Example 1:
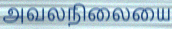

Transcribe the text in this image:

அவலநிலையை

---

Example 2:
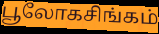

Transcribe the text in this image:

பூலோகசிங்கம்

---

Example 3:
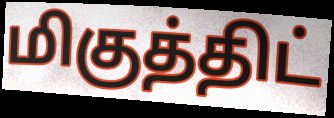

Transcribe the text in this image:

மிகுத்திட்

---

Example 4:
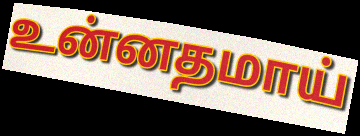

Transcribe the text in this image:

உன்னதமாய்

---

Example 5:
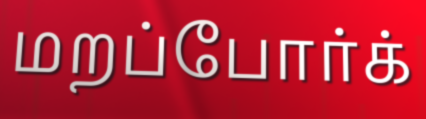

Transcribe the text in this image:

மறப்போர்க்